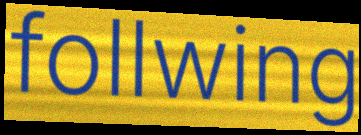
follwing